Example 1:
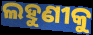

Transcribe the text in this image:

ଲହୁଣୀକୁ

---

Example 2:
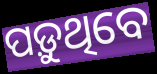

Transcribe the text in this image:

ପଡ଼ୁଥିବେ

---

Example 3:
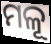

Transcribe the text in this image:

ମଳୂ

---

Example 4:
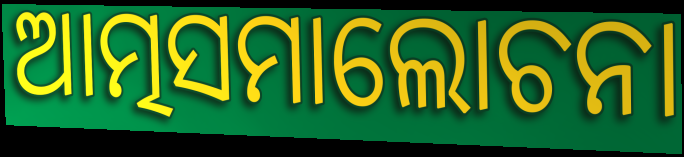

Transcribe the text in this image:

ଆତ୍ମସମାଲୋଚନା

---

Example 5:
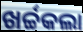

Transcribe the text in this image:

ଖର୍ଚ୍ଚକଲା